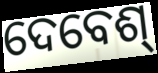
ଦେବେଶ୍